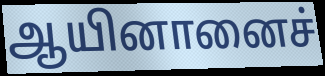
ஆயினானைச்